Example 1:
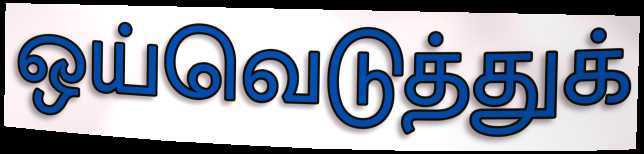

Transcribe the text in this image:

ஒய்வெடுத்துக்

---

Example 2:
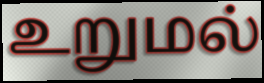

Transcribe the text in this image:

உறுமல்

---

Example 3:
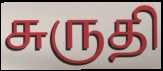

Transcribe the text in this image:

சுருதி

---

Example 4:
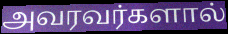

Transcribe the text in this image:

அவரவர்களால்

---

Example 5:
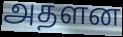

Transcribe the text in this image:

அதளன